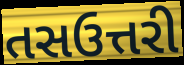
તસઉત્તરી